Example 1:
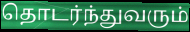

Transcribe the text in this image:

தொடர்ந்துவரும்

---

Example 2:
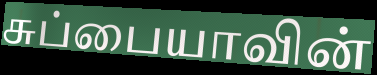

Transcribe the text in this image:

சுப்பையாவின்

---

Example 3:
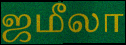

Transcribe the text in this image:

ஜமீலா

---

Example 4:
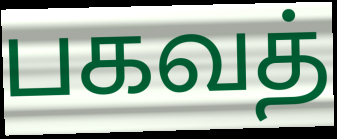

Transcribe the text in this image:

பகவத்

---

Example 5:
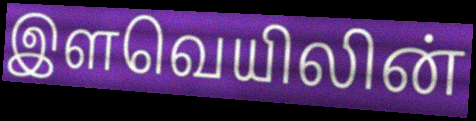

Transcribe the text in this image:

இளவெயிலின்